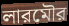
লারমৌর